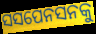
ସସପେନସନକୁ